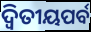
ଦ୍ୱିତୀୟପର୍ବ